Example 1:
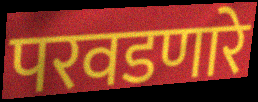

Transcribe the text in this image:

परवडणारे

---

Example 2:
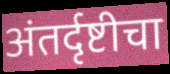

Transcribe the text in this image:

अंतर्दृष्टीचा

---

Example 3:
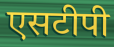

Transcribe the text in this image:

एसटीपी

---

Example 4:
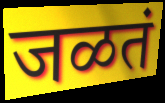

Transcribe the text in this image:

जळतं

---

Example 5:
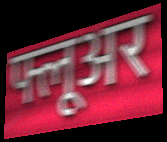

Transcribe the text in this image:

फ्लूअर